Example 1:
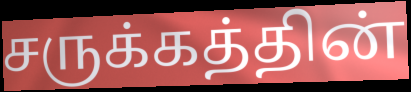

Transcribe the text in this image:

சருக்கத்தின்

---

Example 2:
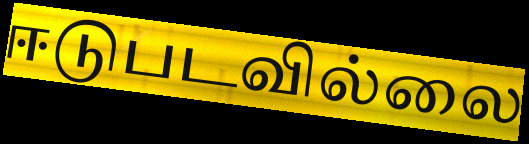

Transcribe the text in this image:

ஈடுபடவில்லை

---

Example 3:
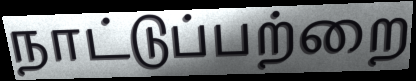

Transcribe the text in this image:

நாட்டுப்பற்றை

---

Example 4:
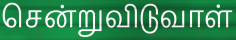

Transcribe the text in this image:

சென்றுவிடுவாள்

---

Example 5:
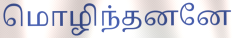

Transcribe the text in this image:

மொழிந்தனனே